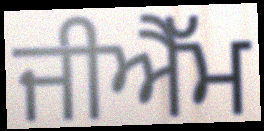
ਜੀਐੱਮ